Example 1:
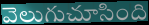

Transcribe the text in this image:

వెలుగుచూసింది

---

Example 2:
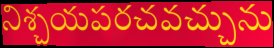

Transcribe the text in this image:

నిశ్చయపరచవచ్చును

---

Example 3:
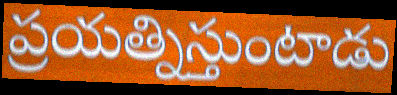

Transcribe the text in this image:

ప్రయత్నిస్తుంటాడు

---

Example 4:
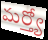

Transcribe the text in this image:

మర్త్యో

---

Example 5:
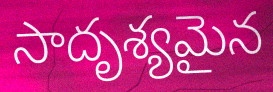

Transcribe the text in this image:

సాదృశ్యమైన